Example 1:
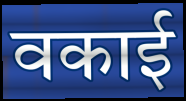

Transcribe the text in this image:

वकाई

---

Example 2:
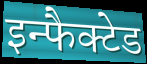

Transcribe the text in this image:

इन्फैक्टेड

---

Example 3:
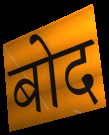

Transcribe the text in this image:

बोद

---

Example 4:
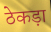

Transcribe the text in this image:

ठेकड़ा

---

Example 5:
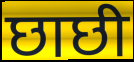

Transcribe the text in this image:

छाछी